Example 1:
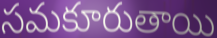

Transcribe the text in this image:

సమకూరుతాయి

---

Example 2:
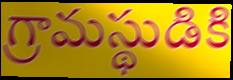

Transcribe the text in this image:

గ్రామస్థుడికి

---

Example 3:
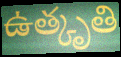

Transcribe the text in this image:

ఉత్కృతి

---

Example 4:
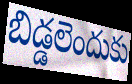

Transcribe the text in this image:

బిడ్డలెందుకు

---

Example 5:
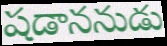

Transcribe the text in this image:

షడాననుడు